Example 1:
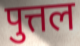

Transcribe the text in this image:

पुत्तल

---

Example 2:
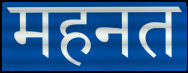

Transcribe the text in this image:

महनत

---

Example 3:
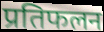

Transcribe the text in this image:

प्रतिफलन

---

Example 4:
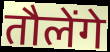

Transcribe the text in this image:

तौलेंगे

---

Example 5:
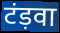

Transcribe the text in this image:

टंड़वा